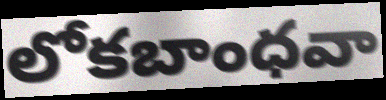
లోకబాంధవా